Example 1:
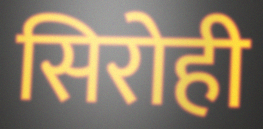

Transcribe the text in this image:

सिरोही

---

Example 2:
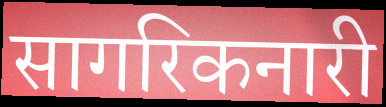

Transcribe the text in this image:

सागरिकनारी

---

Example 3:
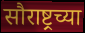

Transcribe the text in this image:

सौराष्ट्रच्या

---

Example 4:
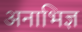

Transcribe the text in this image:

अनाभिज्ञ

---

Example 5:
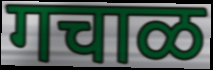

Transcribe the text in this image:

गचाळ